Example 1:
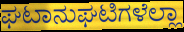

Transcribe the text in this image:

ಘಟಾನುಘಟಿಗಳೆಲ್ಲಾ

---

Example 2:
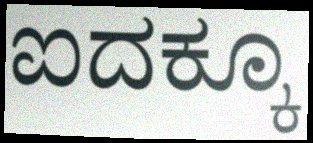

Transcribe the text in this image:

ಐದಕ್ಕೂ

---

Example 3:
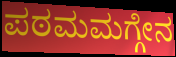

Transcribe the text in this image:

ಪಠಮಮಗ್ಗೇನ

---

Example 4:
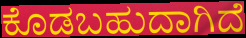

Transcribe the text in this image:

ಕೊಡಬಹುದಾಗಿದೆ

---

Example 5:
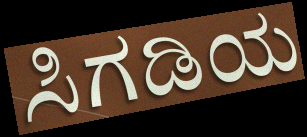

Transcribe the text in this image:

ಸಿಗಡಿಯ